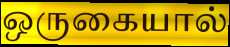
ஒருகையால்